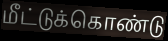
மீட்டுக்கொண்டு